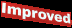
Improved